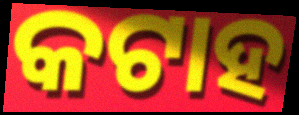
କଟାହ